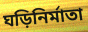
ঘড়িনির্মাতা